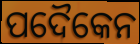
ପଦୈକେନ